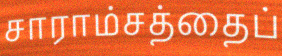
சாராம்சத்தைப்